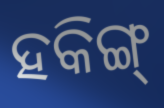
ହକିଙ୍ଗ୍